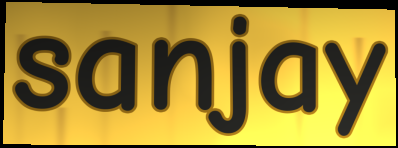
sanjay